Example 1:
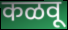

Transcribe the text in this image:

कळवू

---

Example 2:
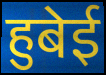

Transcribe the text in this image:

हुबेई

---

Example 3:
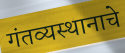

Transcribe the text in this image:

गंतव्यस्थानाचे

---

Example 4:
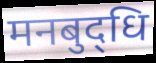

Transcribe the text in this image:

मनबुद्धि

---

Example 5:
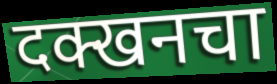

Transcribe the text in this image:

दक्खनचा